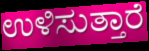
ಉಳಿಸುತ್ತಾರೆ